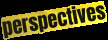
perspectives